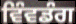
ਵਿੰਵਡੰਗ